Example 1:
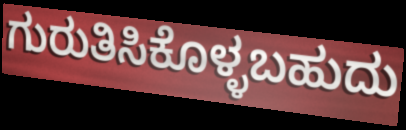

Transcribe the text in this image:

ಗುರುತಿಸಿಕೊಳ್ಳಬಹುದು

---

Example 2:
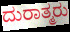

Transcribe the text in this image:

ದುರಾತ್ಮರು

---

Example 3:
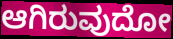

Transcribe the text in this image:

ಆಗಿರುವುದೋ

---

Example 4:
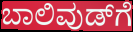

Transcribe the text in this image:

ಬಾಲಿವುಡ್‌ಗೆ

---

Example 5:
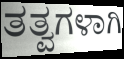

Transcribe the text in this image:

ತತ್ವಗಳಾಗಿ